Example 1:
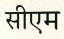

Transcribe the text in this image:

सीएम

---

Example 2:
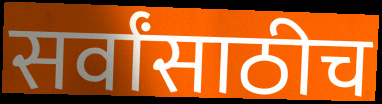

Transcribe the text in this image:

सर्वांसाठीच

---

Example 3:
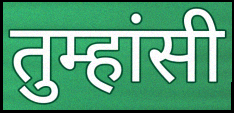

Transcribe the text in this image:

तुम्हांसी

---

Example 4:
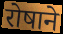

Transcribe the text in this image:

रोषाने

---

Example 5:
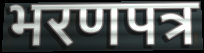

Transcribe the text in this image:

भरणपत्र